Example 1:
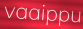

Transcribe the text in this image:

vaaippu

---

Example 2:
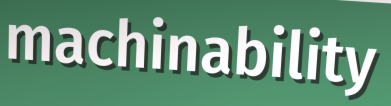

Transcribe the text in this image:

machinability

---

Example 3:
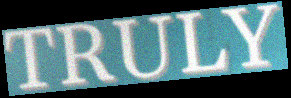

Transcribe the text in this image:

TRULY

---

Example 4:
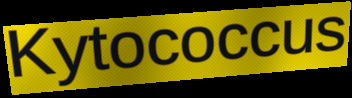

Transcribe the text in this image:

Kytococcus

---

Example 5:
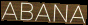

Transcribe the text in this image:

ABANA